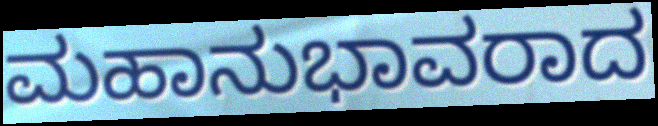
ಮಹಾನುಭಾವರಾದ